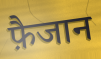
फ़ैजान